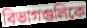
বিভাগগুলিকে